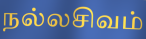
நல்லசிவம்